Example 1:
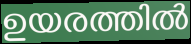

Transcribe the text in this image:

ഉയരത്തിൽ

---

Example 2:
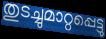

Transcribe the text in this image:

തുടച്ചുമാറ്റപ്പെട്ടു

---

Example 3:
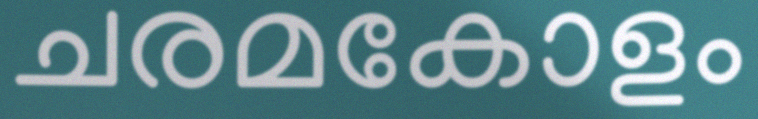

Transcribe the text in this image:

ചരമകോളം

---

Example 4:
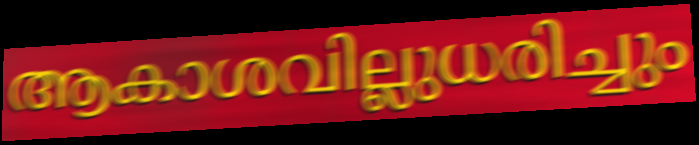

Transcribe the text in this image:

ആകാശവില്ലുധരിച്ചും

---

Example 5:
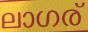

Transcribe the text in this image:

ലാഗര്